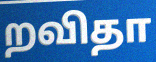
றவிதா